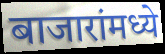
बाजारांमध्ये